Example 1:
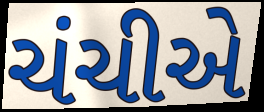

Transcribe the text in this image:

ચંચીએ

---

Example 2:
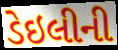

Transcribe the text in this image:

ડેઇલીની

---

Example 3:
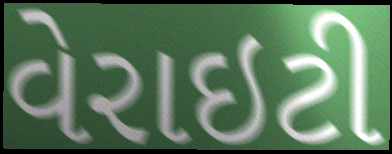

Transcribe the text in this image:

વેરાઇટી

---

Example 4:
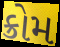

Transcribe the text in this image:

ક્રોમ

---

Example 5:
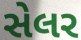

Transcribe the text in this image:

સેલર